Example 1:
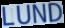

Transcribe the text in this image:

LUND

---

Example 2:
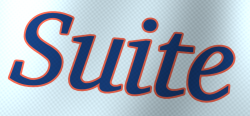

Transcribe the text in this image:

Suite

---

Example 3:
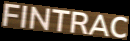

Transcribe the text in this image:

FINTRAC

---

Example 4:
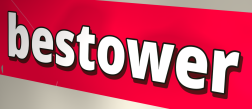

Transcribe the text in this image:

bestower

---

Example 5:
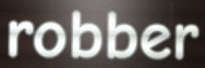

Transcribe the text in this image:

robber